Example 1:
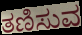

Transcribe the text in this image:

ತಣಿಸುವ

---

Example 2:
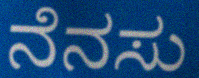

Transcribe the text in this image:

ನೆನಸು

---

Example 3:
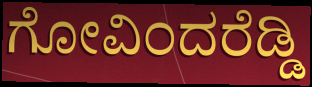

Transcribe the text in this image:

ಗೋವಿಂದರೆಡ್ಡಿ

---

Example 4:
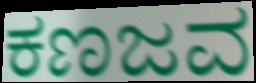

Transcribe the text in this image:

ಕಣಜವ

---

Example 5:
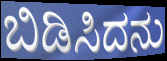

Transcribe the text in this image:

ಬಿಡಿಸಿದನು